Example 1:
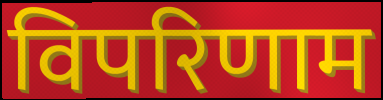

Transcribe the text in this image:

विपरिणाम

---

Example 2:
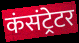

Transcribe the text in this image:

कंसंट्रेटर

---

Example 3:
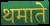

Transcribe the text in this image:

थमाते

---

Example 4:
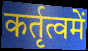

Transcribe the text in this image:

कर्तृत्वमें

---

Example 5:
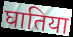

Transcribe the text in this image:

घातिया